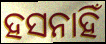
ହସନାହିଁ